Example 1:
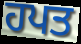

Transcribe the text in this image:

ਹਪਤ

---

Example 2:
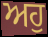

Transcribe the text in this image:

ਅਹੁ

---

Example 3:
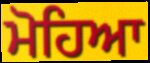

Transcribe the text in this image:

ਮੋਹਿਆ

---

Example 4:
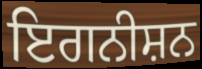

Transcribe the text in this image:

ਇਗਨੀਸ਼ਨ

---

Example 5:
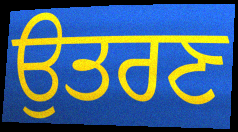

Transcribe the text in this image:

ਉਤਰਣ